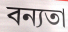
বন্যতা